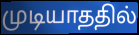
முடியாததில்